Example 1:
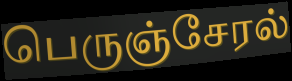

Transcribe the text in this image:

பெருஞ்சேரல்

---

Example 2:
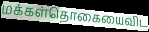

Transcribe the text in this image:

மக்கள்தொகையைவிட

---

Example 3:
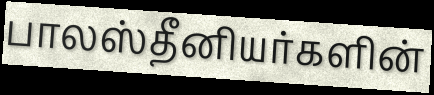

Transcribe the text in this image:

பாலஸ்தீனியர்களின்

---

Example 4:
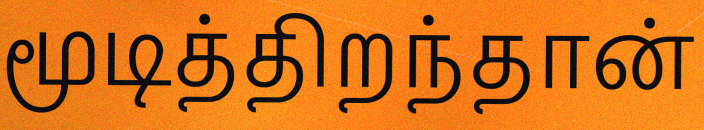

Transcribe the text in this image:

மூடித்திறந்தான்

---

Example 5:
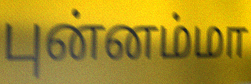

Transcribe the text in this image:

புன்னம்மா